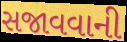
સજાવવાની